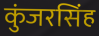
कुंजरसिंह